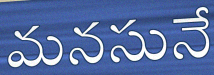
మనసునే